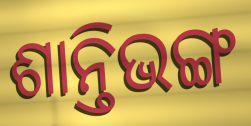
ଶାନ୍ତିଭଙ୍ଗ